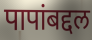
पापांबद्दल